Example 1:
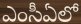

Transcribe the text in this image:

ఎంసీఏలో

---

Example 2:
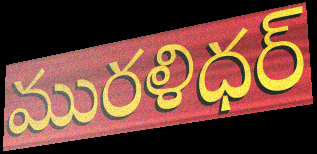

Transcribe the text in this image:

మురళిధర్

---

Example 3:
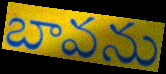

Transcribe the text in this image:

బావను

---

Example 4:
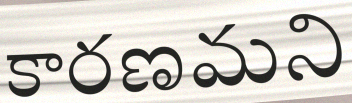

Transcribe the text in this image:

కారణమని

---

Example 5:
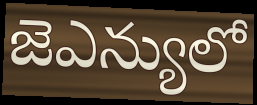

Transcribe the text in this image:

జెఎన్యులో